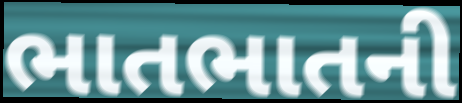
ભાતભાતની